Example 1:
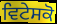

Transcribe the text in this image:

ਵਿਟੇਸਕੋ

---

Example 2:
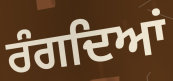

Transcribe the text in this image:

ਰੰਗਦਿਆਂ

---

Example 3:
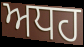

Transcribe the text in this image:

ਅਧਹ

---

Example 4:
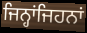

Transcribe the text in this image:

ਜਿਨ੍ਹਾਂਜਿਹਨਾਂ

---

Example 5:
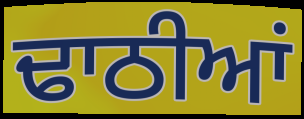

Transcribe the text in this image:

ਢਾਠੀਆਂ